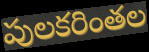
పులకరింతల